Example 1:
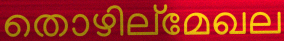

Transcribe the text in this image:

തൊഴില്മേഖല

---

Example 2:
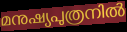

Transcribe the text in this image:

മനുഷ്യപുത്രനിൽ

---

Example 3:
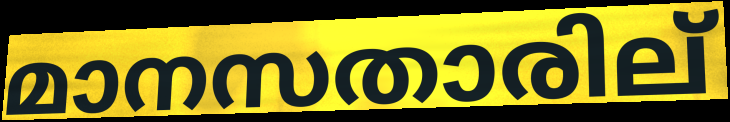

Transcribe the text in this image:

മാനസതാരില്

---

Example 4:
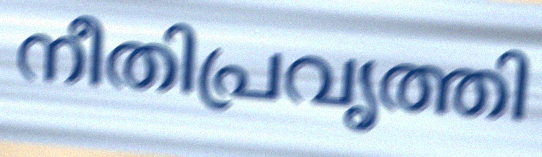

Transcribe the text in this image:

നീതിപ്രവൃത്തി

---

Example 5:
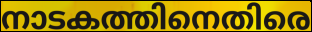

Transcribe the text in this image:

നാടകത്തിനെതിരെ